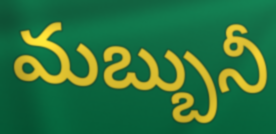
మబ్బునీ